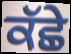
ਕੱਛੇ